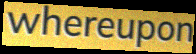
whereupon